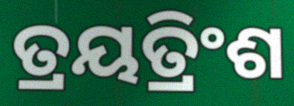
ତ୍ରୟତ୍ରିଂଶ